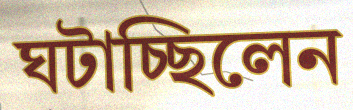
ঘটাচ্ছিলেন